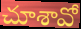
చూశావో